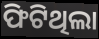
ଫିଟିଥିଲା